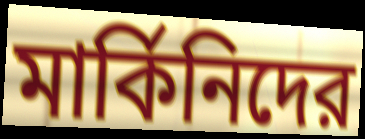
মার্কিনিদের